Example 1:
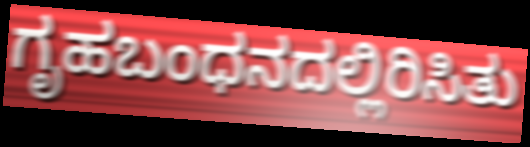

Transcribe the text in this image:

ಗೃಹಬಂಧನದಲ್ಲಿರಿಸಿತು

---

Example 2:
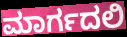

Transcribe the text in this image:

ಮಾರ್ಗದಲಿ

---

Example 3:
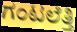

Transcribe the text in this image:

ಗಂಟಲೆತ್ತಿ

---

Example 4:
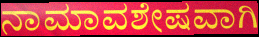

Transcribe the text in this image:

ನಾಮಾವಶೇಷವಾಗಿ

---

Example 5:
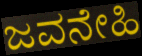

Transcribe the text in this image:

ಜವನೇಹಿ